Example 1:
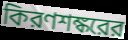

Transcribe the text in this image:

কিরণশঙ্করের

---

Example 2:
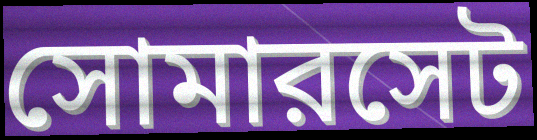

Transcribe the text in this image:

সোমারসেট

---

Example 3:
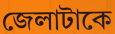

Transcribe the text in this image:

জেলাটাকে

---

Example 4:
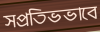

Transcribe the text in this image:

সপ্রতিভভাবে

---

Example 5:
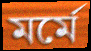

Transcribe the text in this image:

মর্মে